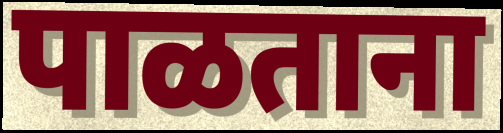
पाळताना